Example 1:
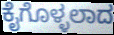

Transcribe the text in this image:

ಕೈಗೊಳ್ಳಲಾದ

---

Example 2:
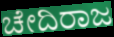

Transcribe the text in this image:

ಚೇದಿರಾಜ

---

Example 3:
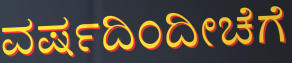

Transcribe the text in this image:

ವರ್ಷದಿಂದೀಚೆಗೆ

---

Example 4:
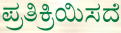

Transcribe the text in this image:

ಪ್ರತಿಕ್ರಿಯಿಸದೆ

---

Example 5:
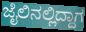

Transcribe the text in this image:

ಜೈಲಿನಲ್ಲಿದ್ದಾಗ